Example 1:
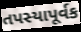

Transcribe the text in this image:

તપસ્યાપૂર્વક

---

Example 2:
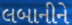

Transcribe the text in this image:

લબાનીને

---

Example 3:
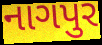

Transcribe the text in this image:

નાગપુર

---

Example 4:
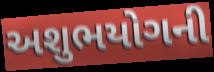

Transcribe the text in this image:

અશુભયોગની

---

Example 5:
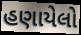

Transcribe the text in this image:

હણાયેલો